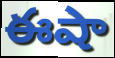
ఈషా